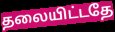
தலையிட்டதே